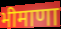
भीमाणा